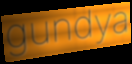
gundya